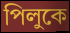
পিলুকে